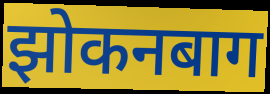
झोकनबाग